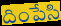
దింపేసి